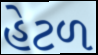
હેટળ